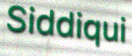
Siddiqui